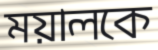
ময়ালকে